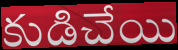
కుడిచేయి